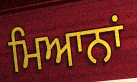
ਮਿਆਨਾਂ